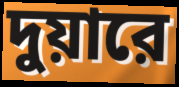
দুয়ারে